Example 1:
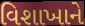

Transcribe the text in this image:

વિશાખાને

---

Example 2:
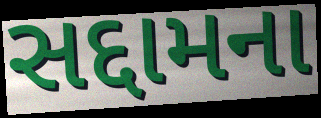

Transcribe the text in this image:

સદ્દામના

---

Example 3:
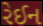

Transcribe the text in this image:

રેઈન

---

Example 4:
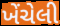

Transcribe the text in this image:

ખેંચેલી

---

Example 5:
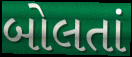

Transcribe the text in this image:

બોલતાં